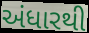
અંધારથી